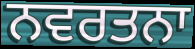
ਨਵਰਤਨਾ